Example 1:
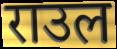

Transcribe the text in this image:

राउल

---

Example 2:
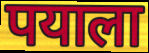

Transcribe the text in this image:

पयाला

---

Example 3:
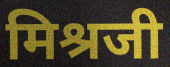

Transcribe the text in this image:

मिश्रजी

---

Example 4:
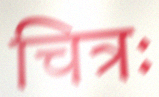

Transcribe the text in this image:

चित्रः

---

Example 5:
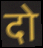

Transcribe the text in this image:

दो